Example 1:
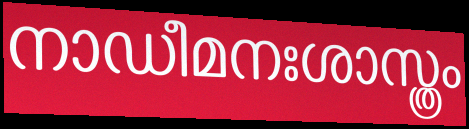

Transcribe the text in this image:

നാഡീമനഃശാസ്ത്രം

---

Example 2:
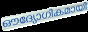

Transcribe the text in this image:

ഔദ്യോഗികമായി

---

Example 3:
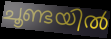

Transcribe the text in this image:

ചൂണ്ടയിൽ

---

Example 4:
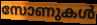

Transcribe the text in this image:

സോണുകൾ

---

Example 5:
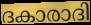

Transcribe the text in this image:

ദകാരാദി